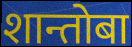
शान्तोबा